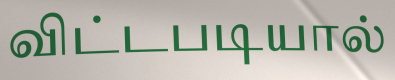
விட்டபடியால்